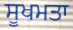
ਸੂਖਮਤਾ